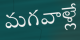
మగవాళ్లే